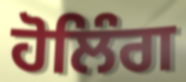
ਹੋਲਿੰਗ